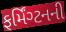
ફર્મિંગ્ટનની